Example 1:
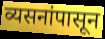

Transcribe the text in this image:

व्यसनांपासून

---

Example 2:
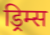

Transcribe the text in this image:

ड्रिम्स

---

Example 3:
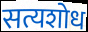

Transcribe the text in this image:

सत्यशोध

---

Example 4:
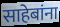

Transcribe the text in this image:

साहेबांना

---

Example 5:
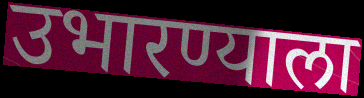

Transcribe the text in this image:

उभारण्याला